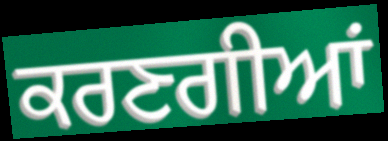
ਕਰਣਗੀਆਂ